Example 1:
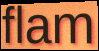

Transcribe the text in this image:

flam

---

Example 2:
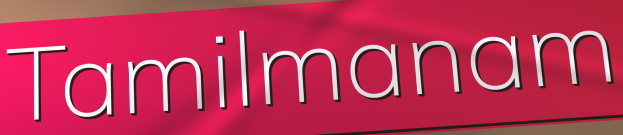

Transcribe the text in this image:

Tamilmanam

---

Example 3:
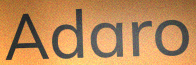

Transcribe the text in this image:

Adaro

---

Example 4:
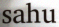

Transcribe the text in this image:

sahu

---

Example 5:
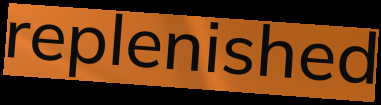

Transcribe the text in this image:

replenished